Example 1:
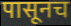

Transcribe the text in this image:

पासूनच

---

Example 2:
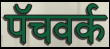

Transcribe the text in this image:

पॅचवर्क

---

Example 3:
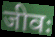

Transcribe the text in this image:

जीवः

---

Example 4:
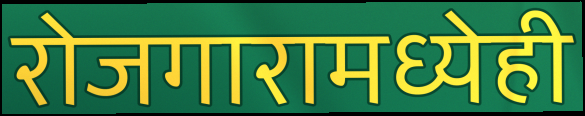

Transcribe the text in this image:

रोजगारामध्येही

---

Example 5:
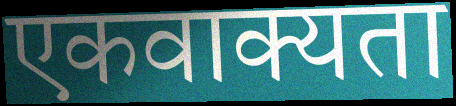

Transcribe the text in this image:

एकवाक्यता